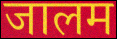
जालम